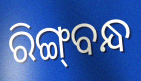
ରିଙ୍ଗ୍‌ବନ୍ଧ